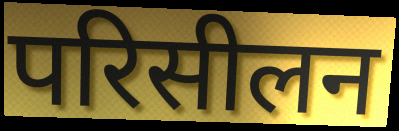
परिसीलन